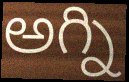
అగ్ని